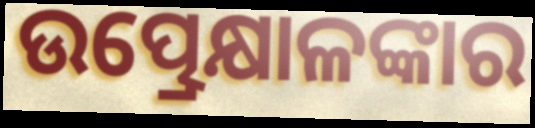
ଉତ୍ପ୍ରେକ୍ଷାଳଙ୍କାର